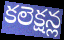
కలెక్షన్ల